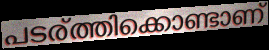
പടര്ത്തിക്കൊണ്ടാണ്